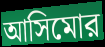
আসিমোর